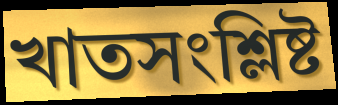
খাতসংশ্লিষ্ট